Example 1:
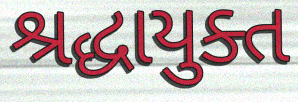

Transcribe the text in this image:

શ્રદ્ધાયુક્ત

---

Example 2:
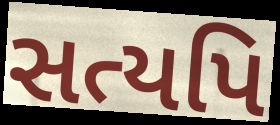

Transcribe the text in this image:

સત્યપિ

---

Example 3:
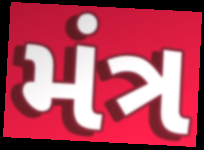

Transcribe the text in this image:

મંત્ર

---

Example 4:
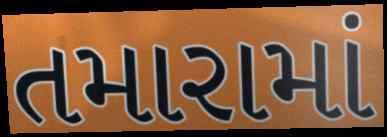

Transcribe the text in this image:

તમારામાં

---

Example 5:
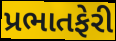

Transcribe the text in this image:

પ્રભાતફેરી